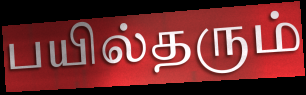
பயில்தரும்